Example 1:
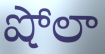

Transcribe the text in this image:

షోలా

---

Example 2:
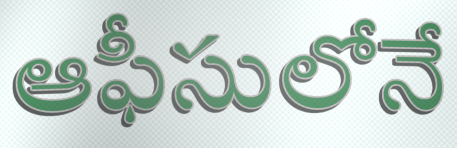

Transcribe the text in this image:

ఆఫీసులోనే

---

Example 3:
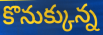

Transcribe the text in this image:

కొనుక్కున్న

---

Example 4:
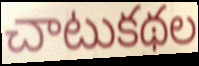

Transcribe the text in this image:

చాటుకథల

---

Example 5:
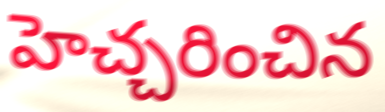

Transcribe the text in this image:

హెచ్చరించిన